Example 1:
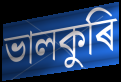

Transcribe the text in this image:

ভালকুৰি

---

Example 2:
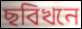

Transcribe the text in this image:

ছবিখনে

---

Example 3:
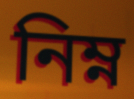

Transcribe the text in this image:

নিম্ন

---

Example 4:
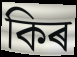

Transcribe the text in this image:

কিৰ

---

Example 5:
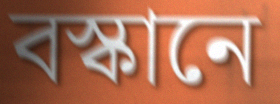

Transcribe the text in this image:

বস্কানে